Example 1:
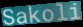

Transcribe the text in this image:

Sakoli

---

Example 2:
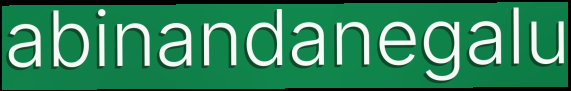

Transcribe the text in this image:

abinandanegalu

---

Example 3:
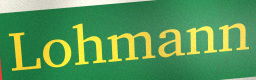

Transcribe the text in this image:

Lohmann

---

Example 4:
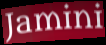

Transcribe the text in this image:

Jamini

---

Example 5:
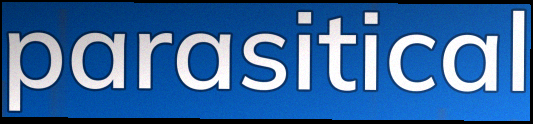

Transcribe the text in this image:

parasitical